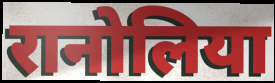
रानोलिया